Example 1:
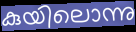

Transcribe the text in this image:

കുയിലൊന്നു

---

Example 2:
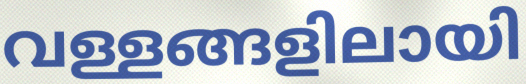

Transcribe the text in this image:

വള്ളങ്ങളിലായി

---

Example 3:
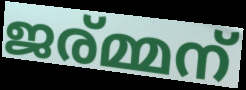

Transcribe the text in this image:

ജര്മ്മന്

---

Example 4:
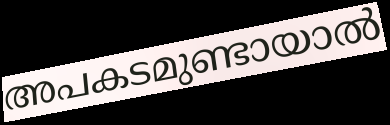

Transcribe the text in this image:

അപകടമുണ്ടായാൽ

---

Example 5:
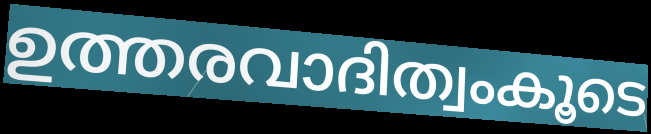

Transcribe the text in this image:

ഉത്തരവാദിത്വംകൂടെ